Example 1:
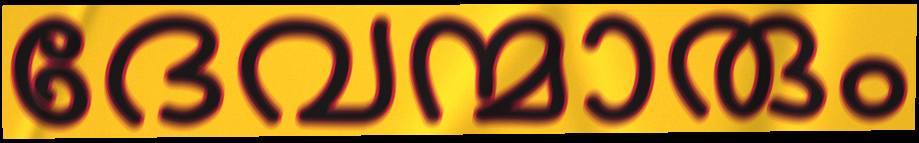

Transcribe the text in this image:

ദേവന്മാരും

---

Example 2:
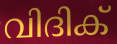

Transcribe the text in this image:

വിദിക്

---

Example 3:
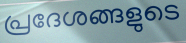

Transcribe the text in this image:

പ്രദേശങ്ങളുടെ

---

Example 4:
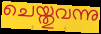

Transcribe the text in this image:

ചെയ്തുവന്നു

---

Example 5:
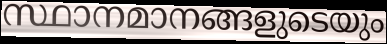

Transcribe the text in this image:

സ്ഥാനമാനങ്ങളുടെയും